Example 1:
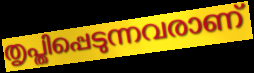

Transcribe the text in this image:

തൃപ്തിപ്പെടുന്നവരാണ്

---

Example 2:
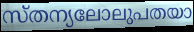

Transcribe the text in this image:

സ്തന്യലോലുപതയാ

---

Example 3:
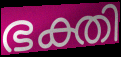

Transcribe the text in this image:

ഭക്തി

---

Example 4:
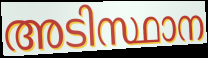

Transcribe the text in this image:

അടിസ്ഥാന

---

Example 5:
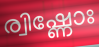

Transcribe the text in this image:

ര്വിഷ്ണോഃ